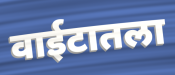
वाईटातला